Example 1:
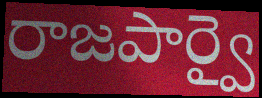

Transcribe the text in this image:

రాజపార్వై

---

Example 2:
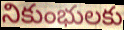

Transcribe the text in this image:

నికుంభులకు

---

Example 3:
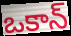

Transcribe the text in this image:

ఒకాన్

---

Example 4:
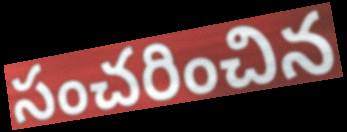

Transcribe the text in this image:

సంచరించిన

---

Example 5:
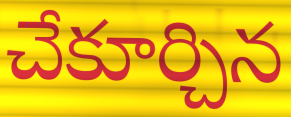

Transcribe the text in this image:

చేకూర్చిన